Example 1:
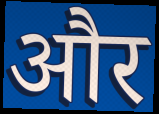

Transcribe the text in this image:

और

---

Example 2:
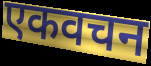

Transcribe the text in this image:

एकवचन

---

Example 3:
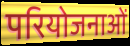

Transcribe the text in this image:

परियोजनाओं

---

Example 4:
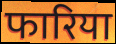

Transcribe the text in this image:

फारिया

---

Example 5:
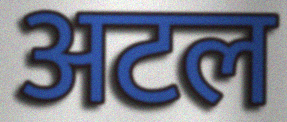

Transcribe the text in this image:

अटल